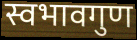
स्वभावगुण